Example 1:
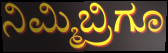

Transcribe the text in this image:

ನಿಮ್ಮಿಬ್ರಿಗೂ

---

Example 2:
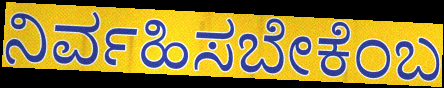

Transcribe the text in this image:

ನಿರ್ವಹಿಸಬೇಕೆಂಬ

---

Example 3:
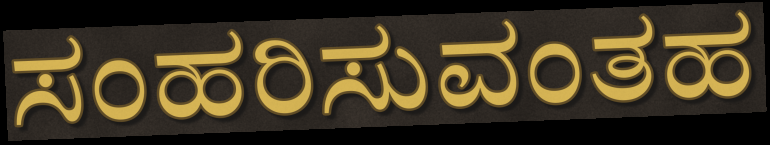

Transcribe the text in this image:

ಸಂಹರಿಸುವಂತಹ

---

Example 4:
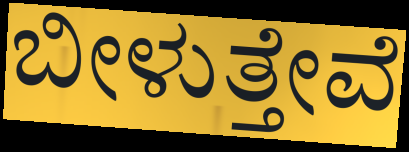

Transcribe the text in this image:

ಬೀಳುತ್ತೇವೆ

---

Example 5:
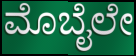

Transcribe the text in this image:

ಮೊಬೈಲೇ